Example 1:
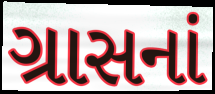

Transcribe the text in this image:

ગ્રાસનાં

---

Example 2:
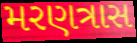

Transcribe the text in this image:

મરણત્રાસ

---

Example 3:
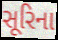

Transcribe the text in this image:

સૂરિના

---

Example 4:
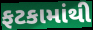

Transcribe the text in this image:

ફટકામાંથી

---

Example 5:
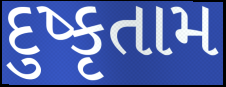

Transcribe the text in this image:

દુષ્કૃતામ